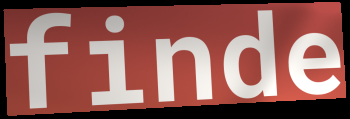
finde